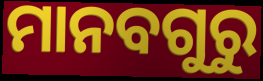
ମାନବଗୁରୁ